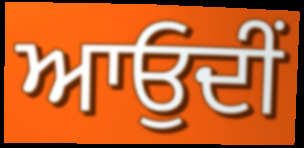
ਆਓੁਦੀਂ